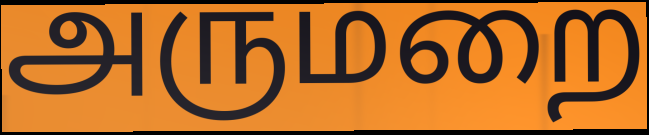
அருமறை